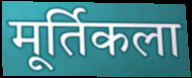
मूर्तिकला